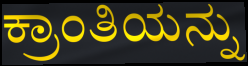
ಕ್ರಾಂತಿಯನ್ನು